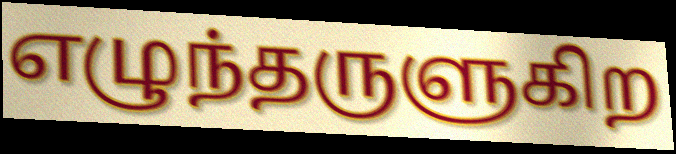
எழுந்தருளுகிற